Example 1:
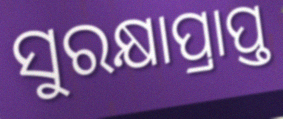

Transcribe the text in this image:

ସୁରକ୍ଷାପ୍ରାପ୍ତ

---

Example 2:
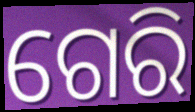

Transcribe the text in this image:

ଗେରି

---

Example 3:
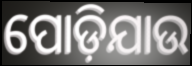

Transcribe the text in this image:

ପୋଡ଼ିଯାଉ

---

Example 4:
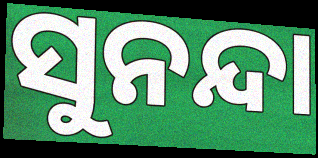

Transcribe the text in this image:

ସୁନନ୍ଦା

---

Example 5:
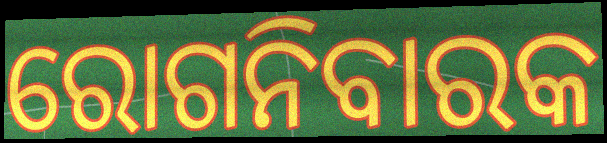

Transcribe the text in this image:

ରୋଗନିବାରକ